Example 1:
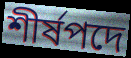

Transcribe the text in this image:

শীর্ষপদে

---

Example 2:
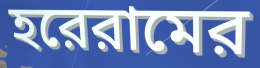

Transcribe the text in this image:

হরেরামের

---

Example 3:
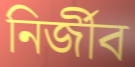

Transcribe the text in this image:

নির্জীব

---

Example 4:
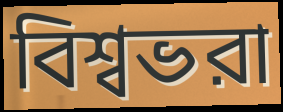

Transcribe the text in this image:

বিশ্বভরা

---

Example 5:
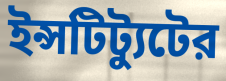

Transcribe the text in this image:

ইন্সটিট্যুটের